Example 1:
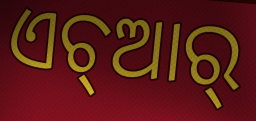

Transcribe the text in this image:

ଏଚ୍ଆର୍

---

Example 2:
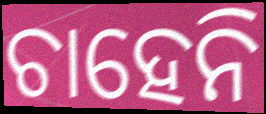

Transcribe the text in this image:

ଚାହେନି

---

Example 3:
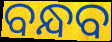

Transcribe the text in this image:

ବନ୍ଧବ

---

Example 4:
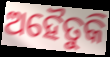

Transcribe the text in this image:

ଅହୈତୁକି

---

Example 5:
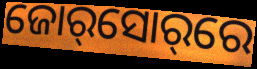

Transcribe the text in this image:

ଜୋର୍‌ସୋର୍‌ରେ